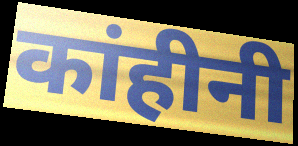
कांहीनी